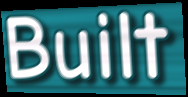
Built